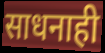
साधनाही